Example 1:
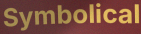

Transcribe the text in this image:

Symbolical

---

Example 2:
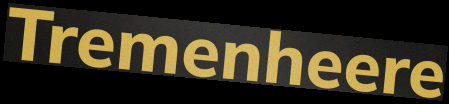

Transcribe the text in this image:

Tremenheere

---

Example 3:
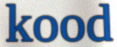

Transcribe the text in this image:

kood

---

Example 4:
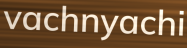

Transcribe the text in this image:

vachnyachi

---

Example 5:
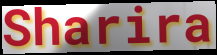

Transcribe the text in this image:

Sharira